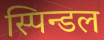
स्पिन्डल